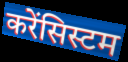
करेंसिस्टम